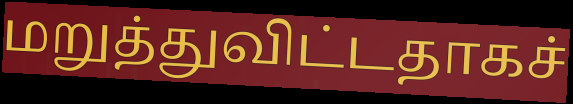
மறுத்துவிட்டதாகச்